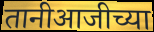
तानीआजीच्या